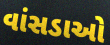
વાંસડાઓ